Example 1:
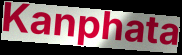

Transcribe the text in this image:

Kanphata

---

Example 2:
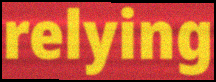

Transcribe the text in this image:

relying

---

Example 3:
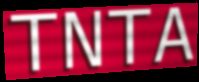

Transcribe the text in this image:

TNTA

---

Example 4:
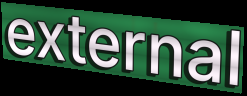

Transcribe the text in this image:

external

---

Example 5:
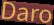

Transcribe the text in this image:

Daro